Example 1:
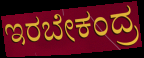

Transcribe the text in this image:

ಇರಬೇಕಂದ್ರ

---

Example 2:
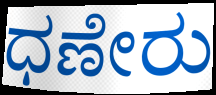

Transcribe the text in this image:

ಧಣೇರು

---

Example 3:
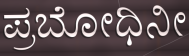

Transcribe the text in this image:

ಪ್ರಬೋಧಿನೀ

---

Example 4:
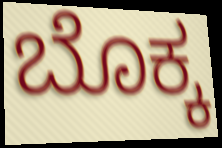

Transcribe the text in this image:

ಬೊಕ್ಕ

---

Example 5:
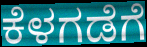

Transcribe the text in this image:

ಕೆಳಗಡೆಗೆ